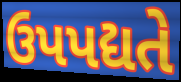
ઉપપદ્યતે